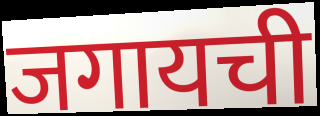
जगायची